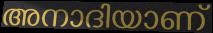
അനാദിയാണ്